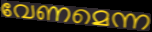
വേണമെന്ന